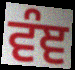
ਵੰਞ